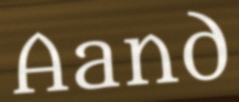
Aand